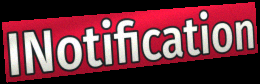
INotification